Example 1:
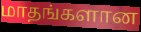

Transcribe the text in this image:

மாதங்களான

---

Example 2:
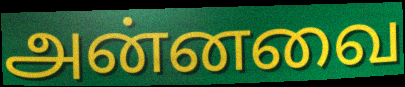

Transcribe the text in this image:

அன்னவை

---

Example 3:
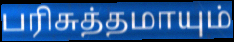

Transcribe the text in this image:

பரிசுத்தமாயும்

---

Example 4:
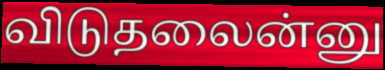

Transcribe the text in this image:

விடுதலைன்னு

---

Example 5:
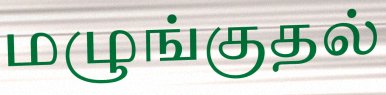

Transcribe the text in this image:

மழுங்குதல்